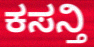
ಕಸನ್ತಿ